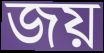
জয়